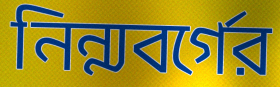
নিন্মবর্গের